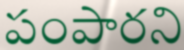
పంపారని